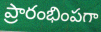
ప్రారంభింపగా